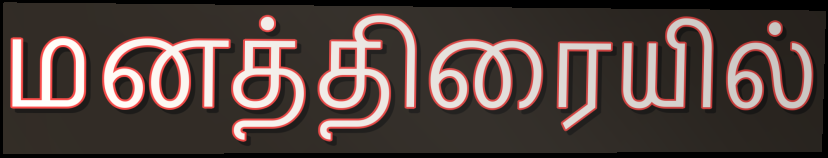
மனத்திரையில்